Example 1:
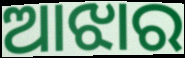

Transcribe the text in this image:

ଆଝାର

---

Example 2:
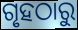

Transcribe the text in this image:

ଗୃହଠାରୁ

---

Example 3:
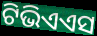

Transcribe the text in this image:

ଟିଭିଏଏସ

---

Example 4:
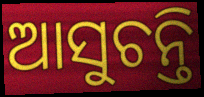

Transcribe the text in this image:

ଆସୁଚନ୍ତି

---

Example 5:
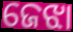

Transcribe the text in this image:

ଜେଝା